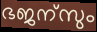
ഭജന്സും